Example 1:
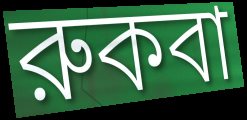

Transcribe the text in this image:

রুকবা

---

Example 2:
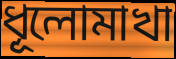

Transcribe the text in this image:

ধূলোমাখা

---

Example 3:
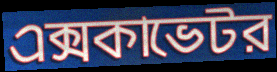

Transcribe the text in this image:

এক্সকাভেটর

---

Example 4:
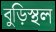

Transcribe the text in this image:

বুড়িস্থল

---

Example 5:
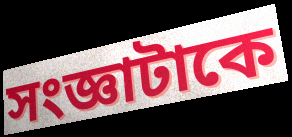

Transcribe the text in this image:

সংজ্ঞাটাকে